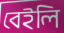
বেইলি